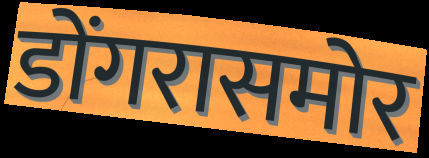
डोंगरासमोर